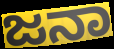
ಜನಾ